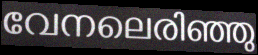
വേനലെരിഞ്ഞു